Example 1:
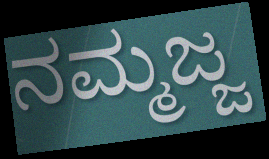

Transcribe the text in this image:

ನಮ್ಮಜ್ಜ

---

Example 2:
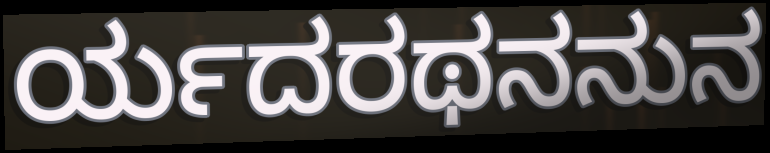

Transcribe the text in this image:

ರ್ಯದರಥನನುನ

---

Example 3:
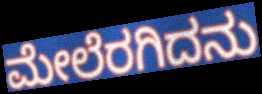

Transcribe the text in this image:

ಮೇಲೆರಗಿದನು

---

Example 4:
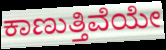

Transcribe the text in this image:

ಕಾಣುತ್ತಿವೆಯೇ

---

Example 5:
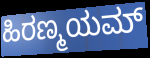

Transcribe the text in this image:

ಹಿರಣ್ಮಯಮ್